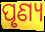
ପୃଣ୍ୟ